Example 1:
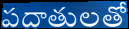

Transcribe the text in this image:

పదాతులతో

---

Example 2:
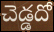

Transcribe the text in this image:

చెడ్డదో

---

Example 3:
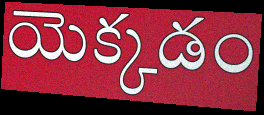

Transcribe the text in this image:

యెక్కడం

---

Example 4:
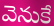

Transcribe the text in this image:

వెనుకే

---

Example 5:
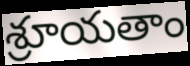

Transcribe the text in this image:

శ్రూయతాం